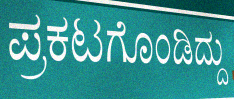
ಪ್ರಕಟಗೊಂಡಿದ್ದು